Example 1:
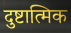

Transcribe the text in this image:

दुष्टात्मिक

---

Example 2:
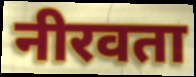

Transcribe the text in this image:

नीरवता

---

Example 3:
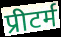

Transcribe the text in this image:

प्रीटर्म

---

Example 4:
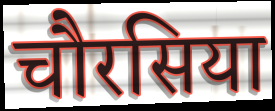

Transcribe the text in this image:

चौरसिया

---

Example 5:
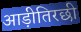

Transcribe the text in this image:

आड़ीतिरछी